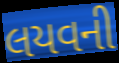
લયવની